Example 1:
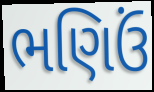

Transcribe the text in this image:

ભણિઉં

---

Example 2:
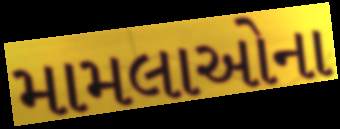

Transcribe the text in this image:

મામલાઓના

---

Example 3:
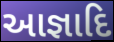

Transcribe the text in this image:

આજ્ઞાદિ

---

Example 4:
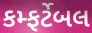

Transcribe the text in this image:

કમ્ફર્ટેબલ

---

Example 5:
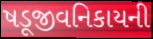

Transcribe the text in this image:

ષડૂજીવનિકાયની